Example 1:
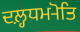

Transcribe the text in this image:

ਦਲ਼੍ਹਧਮ੍ਮੋਤਿ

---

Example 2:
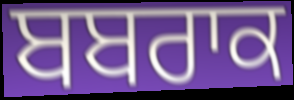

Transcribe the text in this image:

ਬਬਰਾਕ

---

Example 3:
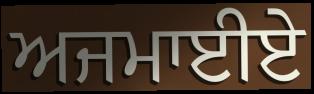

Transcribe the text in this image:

ਅਜਮਾਈਏ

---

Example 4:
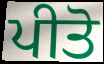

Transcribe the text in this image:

ਪੀਤੋ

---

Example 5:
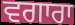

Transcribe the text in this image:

ਵਗਾਰਾ